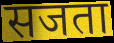
सजता